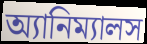
অ্যানিম্যালস